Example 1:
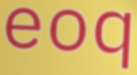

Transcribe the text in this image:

eoq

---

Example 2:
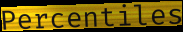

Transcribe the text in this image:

Percentiles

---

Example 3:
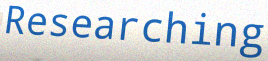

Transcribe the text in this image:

Researching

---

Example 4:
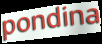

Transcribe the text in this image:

pondina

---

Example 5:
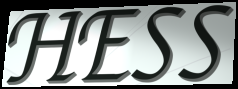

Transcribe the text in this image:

HESS